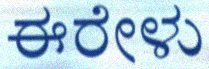
ಈರೇಳು